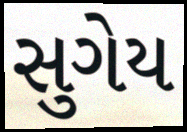
સુગેય